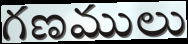
గణములు